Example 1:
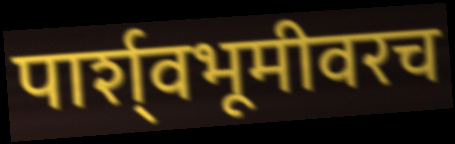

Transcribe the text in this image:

पार्श्वभूमीवरच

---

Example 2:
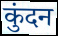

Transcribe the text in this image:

कुंदन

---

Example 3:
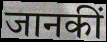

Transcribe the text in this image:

जानकीं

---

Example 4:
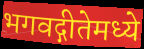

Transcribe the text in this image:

भगवद्गीतेमध्ये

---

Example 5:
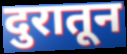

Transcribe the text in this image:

दुरातून